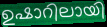
ഉഷാറിലായി